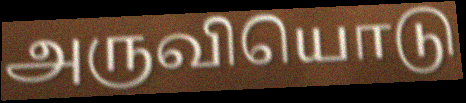
அருவியொடு